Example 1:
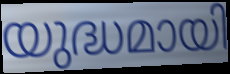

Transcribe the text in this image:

യുദ്ധമായി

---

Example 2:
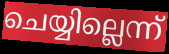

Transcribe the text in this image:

ചെയ്യില്ലെന്ന്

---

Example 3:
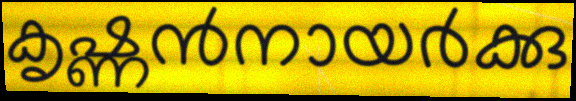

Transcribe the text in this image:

കൃഷ്ണൻനായർക്കു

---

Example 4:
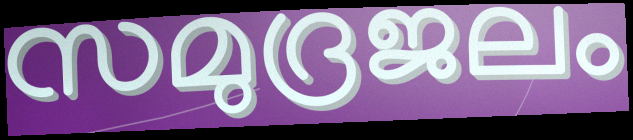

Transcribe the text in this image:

സമുദ്രജലം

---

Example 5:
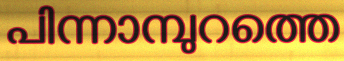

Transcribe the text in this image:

പിന്നാമ്പുറത്തെ